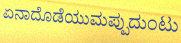
ಏನಾದೊಡೆಯುಮಪ್ಪುದುಂಟು